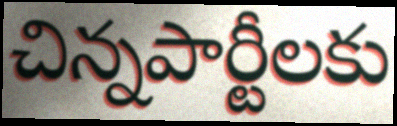
చిన్నపార్టీలకు